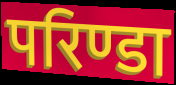
परिण्डा